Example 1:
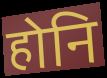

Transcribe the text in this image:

होनि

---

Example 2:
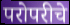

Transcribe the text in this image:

परोपरीचे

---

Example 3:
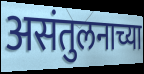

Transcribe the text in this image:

असंतुलनाच्या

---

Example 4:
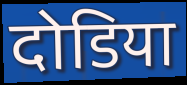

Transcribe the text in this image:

दोडिया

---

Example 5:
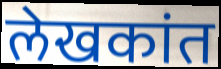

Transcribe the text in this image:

लेखकांत